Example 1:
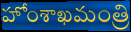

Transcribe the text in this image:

హోంశాఖమంత్రి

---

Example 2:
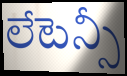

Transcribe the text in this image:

లేటెన్సీ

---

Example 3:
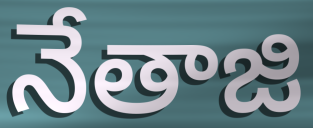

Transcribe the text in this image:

నేతాజి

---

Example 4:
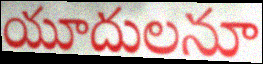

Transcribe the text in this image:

యూదులనూ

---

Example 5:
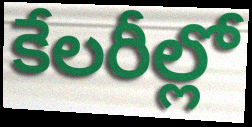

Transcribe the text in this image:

కేలరీల్లో